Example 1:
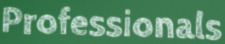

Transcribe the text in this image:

Professionals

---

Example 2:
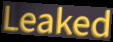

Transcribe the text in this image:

Leaked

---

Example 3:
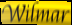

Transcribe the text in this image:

Wilmar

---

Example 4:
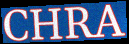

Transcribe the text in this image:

CHRA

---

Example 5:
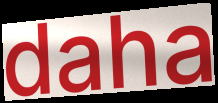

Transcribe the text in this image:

daha